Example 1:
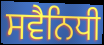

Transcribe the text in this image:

ਸਵੈਨਿਧੀ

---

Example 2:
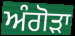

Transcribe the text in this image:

ਅੰਗੋੜਾ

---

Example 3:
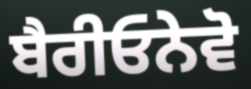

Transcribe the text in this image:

ਬੈਰੀਓਨੇਵੋ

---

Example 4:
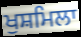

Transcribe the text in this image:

ਖੁਸ਼ਮਿਲਾ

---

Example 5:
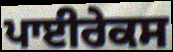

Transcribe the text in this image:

ਪਾਈਰੇਕਸ